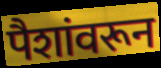
पैशांवरून